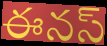
ఈనస్